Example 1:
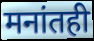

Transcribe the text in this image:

मनांतही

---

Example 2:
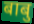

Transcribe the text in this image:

बाबु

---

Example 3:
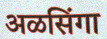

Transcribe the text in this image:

अळसिंगा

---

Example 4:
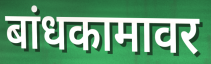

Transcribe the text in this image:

बांधकामावर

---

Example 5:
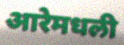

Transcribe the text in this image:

आरेमधली